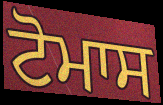
ਟੋਮਾਸ